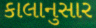
કાલાનુસાર